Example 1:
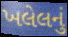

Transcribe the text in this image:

ખલેલનું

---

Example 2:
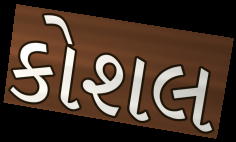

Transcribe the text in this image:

કોશલ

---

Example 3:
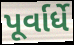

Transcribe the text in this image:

પૂર્વાર્ધે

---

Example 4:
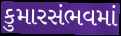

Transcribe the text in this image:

કુમારસંભવમાં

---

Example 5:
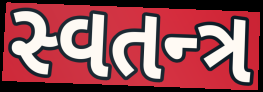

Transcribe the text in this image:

સ્વતન્ત્ર